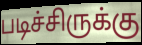
படிச்சிருக்கு